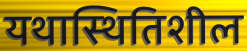
यथास्थितिशील